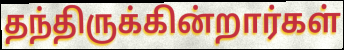
தந்திருக்கின்றார்கள்